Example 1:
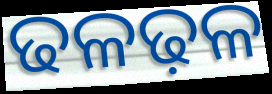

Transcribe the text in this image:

ଢଳଢ଼ଳ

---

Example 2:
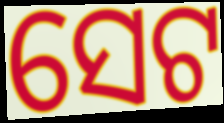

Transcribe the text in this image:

ସେଟ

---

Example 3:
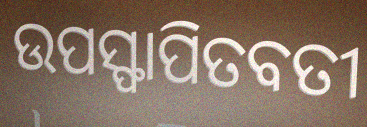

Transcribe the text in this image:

ଉପସ୍ଫାପିତବତୀ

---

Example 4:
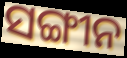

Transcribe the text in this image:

ସଙ୍ଗୀନ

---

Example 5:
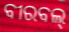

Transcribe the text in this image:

ବୀରବଲ୍